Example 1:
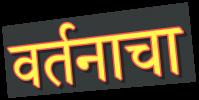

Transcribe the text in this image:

वर्तनाचा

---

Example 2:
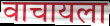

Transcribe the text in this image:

वाचायला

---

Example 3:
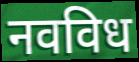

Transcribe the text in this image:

नवविध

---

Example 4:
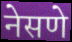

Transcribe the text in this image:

नेसणे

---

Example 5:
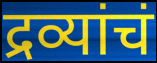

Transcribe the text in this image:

द्रव्यांचं